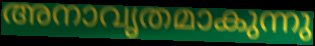
അനാവൃതമാകുന്നു